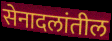
सेनादलांतील